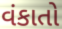
વંકાતો